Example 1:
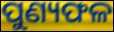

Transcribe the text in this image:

ପୁଣ୍ୟଫଳ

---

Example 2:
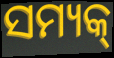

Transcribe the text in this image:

ସମ୍ୟକ୍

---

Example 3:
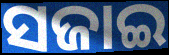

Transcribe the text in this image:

ସଜାଇ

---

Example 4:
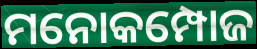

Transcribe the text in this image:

ମନୋକମ୍ପୋଜ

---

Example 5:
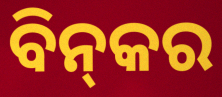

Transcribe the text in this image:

ବିନ୍‌କର